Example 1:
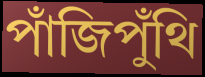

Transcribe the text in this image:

পাঁজিপুঁথি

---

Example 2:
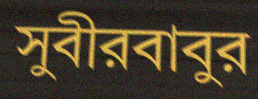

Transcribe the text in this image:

সুবীরবাবুর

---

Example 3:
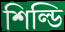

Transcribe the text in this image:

শিল্ডি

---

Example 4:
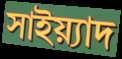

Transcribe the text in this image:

সাইয়্যাদ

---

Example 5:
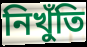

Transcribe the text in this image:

নিখুঁতি